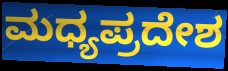
ಮಧ್ಯಪ್ರದೇಶ